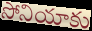
సోనియాకు